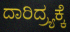
ದಾರಿದ್ರ್ಯಕ್ಕೆ